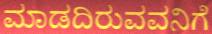
ಮಾಡದಿರುವವನಿಗೆ